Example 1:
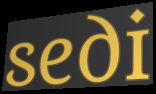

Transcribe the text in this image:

sedi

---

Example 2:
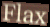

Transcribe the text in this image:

Flax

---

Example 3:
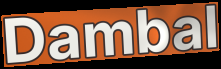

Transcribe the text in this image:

Dambal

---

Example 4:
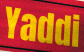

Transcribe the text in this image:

Yaddi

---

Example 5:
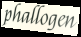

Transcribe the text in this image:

phallogen